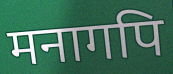
मनागपि